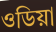
ওডিয়া